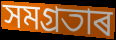
সমগ্ৰতাৰ